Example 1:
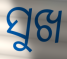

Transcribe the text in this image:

ସୁଖ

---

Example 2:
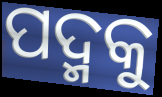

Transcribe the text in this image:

ପଦ୍ମକୁ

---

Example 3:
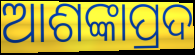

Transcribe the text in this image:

ଆଶଙ୍କାପ୍ରଦ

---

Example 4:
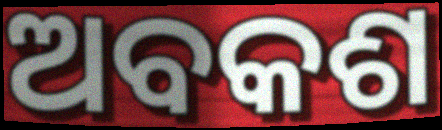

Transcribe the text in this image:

ଅବକଶ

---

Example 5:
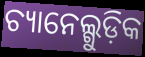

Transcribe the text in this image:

ଚ୍ୟାନେଲ୍ଗୁଡ଼ିକ